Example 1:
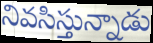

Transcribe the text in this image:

నివసిస్తున్నాడు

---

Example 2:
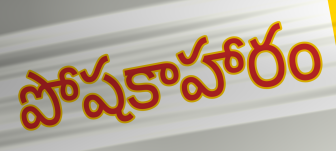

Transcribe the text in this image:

పోషకాహారం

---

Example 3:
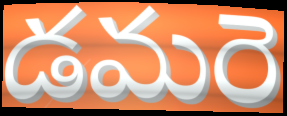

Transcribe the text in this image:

డమరె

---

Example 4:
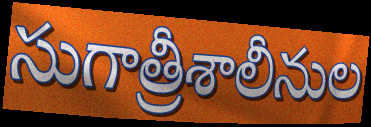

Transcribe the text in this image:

సుగాత్రీశాలీనుల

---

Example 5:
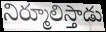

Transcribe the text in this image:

నిర్మూలిస్తాడు